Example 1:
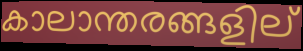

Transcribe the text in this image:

കാലാന്തരങ്ങളില്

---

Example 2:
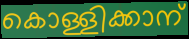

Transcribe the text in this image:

കൊള്ളിക്കാന്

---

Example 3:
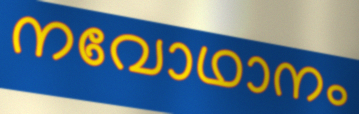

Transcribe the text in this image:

നവോഥാനം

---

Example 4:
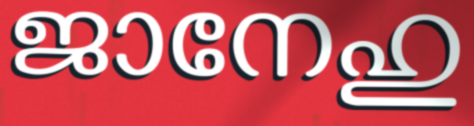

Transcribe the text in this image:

ജാനേഹു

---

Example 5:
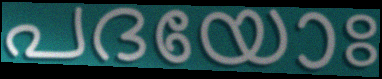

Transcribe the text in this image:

പദയോഃ